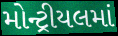
મોન્ટ્રીયલમાં